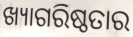
ଖ୍ୟାଗରିଷ୍ଠତାର